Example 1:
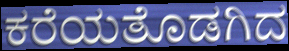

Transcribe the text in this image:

ಕರೆಯತೊಡಗಿದ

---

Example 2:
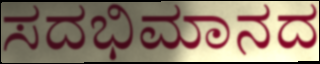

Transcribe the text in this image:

ಸದಭಿಮಾನದ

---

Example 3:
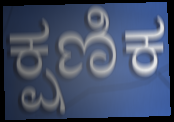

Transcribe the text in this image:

ಕ್ಷಣಿಕ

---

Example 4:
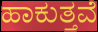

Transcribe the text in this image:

ಹಾಕುತ್ತವೆ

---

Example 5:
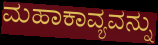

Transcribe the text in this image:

ಮಹಾಕಾವ್ಯವನ್ನು